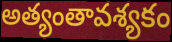
అత్యంతావశ్యకం